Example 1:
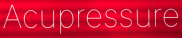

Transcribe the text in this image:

Acupressure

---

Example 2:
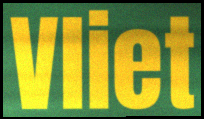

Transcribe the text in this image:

Vliet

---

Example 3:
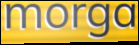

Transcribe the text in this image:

morga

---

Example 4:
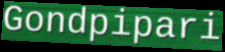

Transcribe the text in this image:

Gondpipari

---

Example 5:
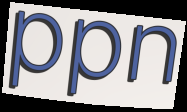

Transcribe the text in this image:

ppn